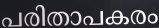
പരിതാപകരം